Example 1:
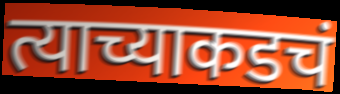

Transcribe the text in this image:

त्याच्याकडचं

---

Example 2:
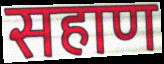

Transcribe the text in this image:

सहाण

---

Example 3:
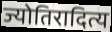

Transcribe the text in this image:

ज्योतिरादित्य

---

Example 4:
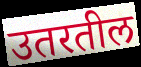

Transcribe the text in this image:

उतरतील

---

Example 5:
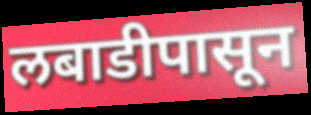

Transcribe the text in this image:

लबाडीपासून